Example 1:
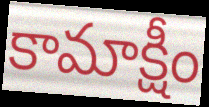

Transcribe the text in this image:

కామాక్షీం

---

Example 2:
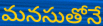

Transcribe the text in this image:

మనసుతోనే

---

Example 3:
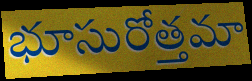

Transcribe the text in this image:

భూసురోత్తమా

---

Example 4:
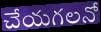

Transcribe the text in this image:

చేయగలనో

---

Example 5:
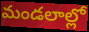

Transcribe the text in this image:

మండలాల్లో